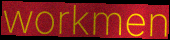
workmen